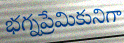
భగ్నప్రేమికునిగా